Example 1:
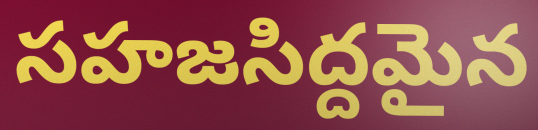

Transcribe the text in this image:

సహజసిద్దమైన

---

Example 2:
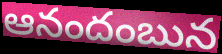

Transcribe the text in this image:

ఆనందంబున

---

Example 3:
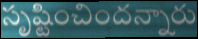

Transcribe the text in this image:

సృష్టించిందన్నారు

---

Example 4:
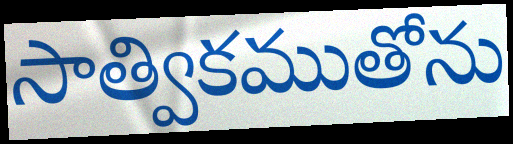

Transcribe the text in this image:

సాత్వికముతోను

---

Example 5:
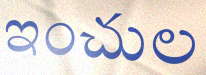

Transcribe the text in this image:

ఇంచుల